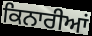
ਕਿਨਾਰੀਆਂ